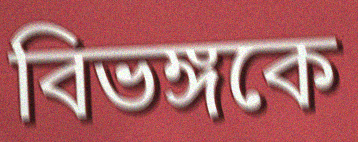
বিভঙ্গকে